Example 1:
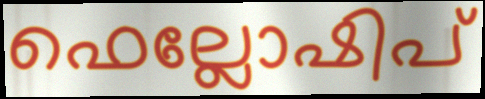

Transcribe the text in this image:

ഫെല്ലോഷിപ്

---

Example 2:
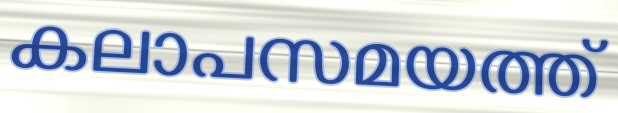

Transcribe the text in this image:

കലാപസമയത്ത്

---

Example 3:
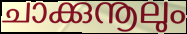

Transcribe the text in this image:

ചാക്കുനൂലും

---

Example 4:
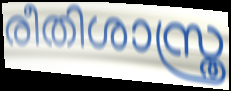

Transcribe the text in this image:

രീതിശാസ്ത്ര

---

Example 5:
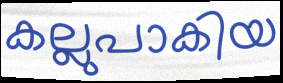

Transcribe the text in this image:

കല്ലുപാകിയ